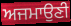
ਅਜਮਾਉਣੀ